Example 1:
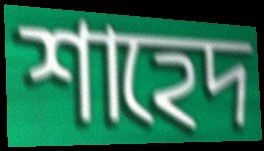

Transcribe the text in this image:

শাহেদ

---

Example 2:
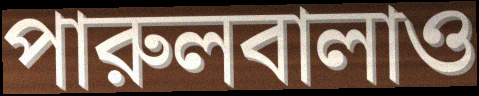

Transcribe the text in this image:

পারুলবালাও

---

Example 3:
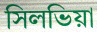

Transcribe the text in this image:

সিলভিয়া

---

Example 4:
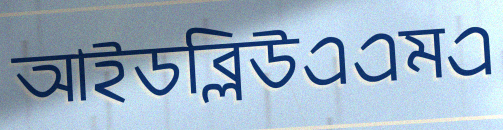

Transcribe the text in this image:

আইডব্লিউএএমএ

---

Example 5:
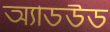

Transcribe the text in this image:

অ্যাডউড